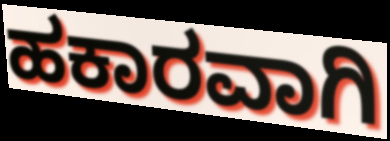
ಹಕಾರವಾಗಿ